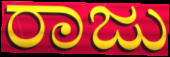
ರಾಜು